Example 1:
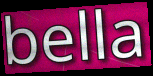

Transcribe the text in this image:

bella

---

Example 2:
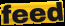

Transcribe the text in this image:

feed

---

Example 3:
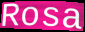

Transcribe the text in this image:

Rosa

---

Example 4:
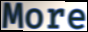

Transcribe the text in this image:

More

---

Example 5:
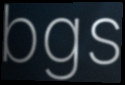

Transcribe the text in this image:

bgs